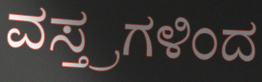
ವಸ್ತ್ರಗಳಿಂದ